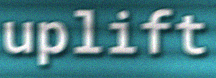
uplift